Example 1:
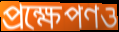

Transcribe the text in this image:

প্রক্ষেপণও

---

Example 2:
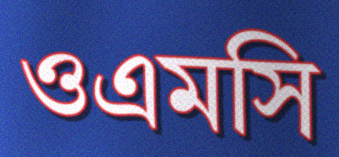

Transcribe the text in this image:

ওএমসি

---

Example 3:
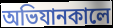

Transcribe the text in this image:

অভিযানকালে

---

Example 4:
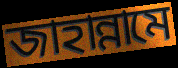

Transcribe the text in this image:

জাহান্নামে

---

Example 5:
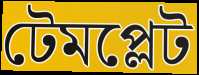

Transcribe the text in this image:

টেমপ্লেট